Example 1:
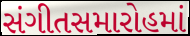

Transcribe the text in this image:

સંગીતસમારોહમાં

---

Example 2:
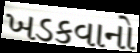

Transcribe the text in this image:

ખડકવાનો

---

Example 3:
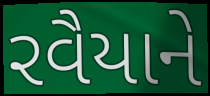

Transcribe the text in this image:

રવૈયાને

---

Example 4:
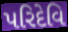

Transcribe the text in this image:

પરિદેવિ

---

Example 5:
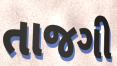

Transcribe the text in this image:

તાજગી